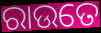
ରାଉତେ